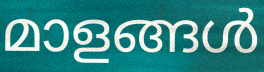
മാളങ്ങൾ